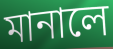
মানালে